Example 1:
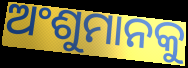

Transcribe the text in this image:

ଅଂଶୁମାନକୁ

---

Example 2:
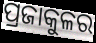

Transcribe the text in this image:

ପ୍ରଜାକୁଳର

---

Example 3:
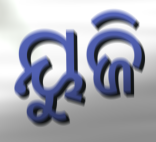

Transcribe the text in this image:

ୟୁଜି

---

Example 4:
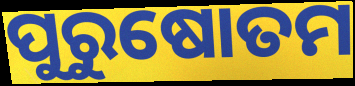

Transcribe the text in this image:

ପୁରୁଷୋତମ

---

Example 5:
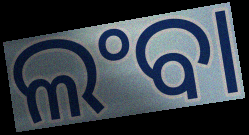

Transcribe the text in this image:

ଲଂବା